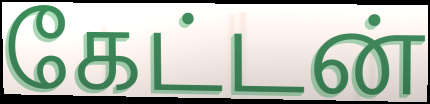
கேட்டன்